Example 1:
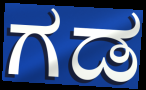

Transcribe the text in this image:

ಗಡ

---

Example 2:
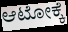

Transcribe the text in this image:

ಆಟೋಕ್ಕೆ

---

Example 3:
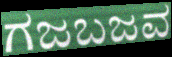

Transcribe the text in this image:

ಗಜಬಜವ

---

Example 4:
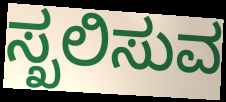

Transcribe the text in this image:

ಸ್ಖಲಿಸುವ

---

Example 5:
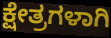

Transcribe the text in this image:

ಕ್ಷೇತ್ರಗಳಾಗಿ